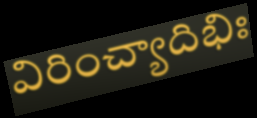
విరించ్యాదిభిః